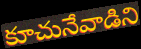
కూచునేవాడిని